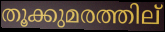
തൂക്കുമരത്തില്